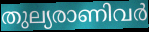
തുല്യരാണിവർ